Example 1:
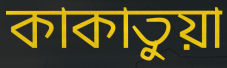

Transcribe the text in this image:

কাকাতুয়া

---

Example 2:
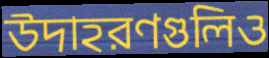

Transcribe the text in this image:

উদাহরণগুলিও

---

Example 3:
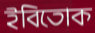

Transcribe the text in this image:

ইবিতোক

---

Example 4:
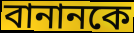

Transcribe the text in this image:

বানানকে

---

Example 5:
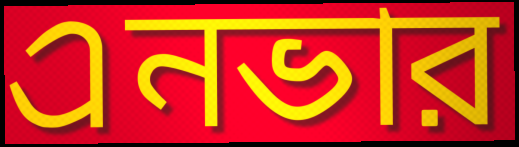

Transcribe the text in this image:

এনভার